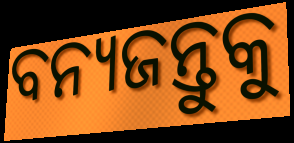
ବନ୍ୟଜନ୍ତୁକୁ